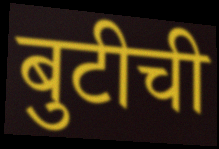
बुटीची